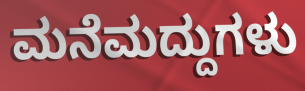
ಮನೆಮದ್ದುಗಳು